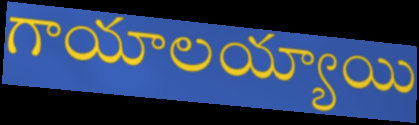
గాయాలయ్యాయి